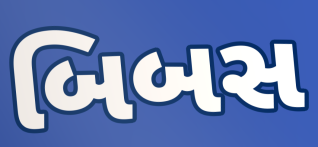
બિબસ